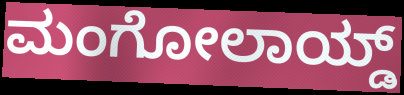
ಮಂಗೋಲಾಯ್ಡ್